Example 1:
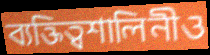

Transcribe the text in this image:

ব্যক্তিত্বশালিনীও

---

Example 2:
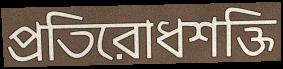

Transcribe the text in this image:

প্রতিরোধশক্তি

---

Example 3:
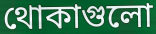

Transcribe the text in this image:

থোকাগুলো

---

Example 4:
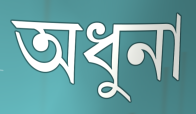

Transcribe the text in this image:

অধুনা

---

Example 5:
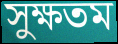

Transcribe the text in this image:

সুক্ষতম